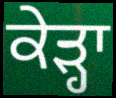
ਕੇੜ੍ਹਾ